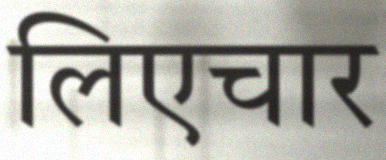
लिएचार